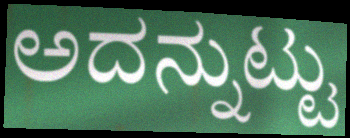
ಅದನ್ನುಟ್ಟು